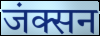
जंक्सन